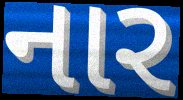
નાર